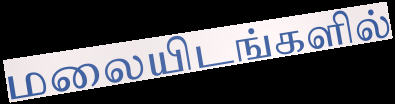
மலையிடங்களில்